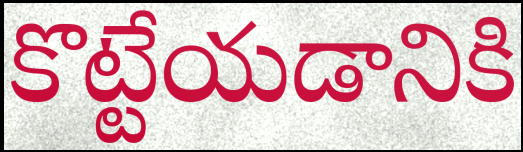
కొట్టేయడానికి